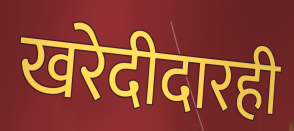
खरेदीदारही